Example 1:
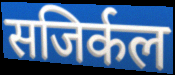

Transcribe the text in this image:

सजिर्कल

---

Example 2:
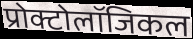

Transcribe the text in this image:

प्रोक्टोलॉजिकल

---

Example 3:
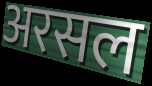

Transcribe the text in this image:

अरसल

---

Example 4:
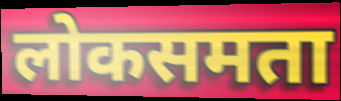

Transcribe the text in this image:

लोकसमता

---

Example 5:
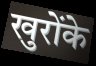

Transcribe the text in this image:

खुरोंके